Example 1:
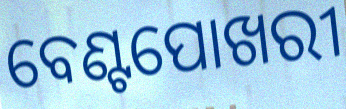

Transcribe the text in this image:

ବେଣ୍ଟପୋଖରୀ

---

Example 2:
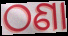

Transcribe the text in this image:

ଠଣା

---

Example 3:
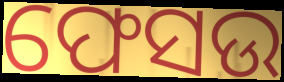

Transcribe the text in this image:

ଫେସଉ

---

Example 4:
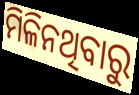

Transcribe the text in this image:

ମିଳିନଥିବାରୁ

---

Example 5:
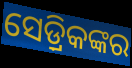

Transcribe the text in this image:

ସେଡ଼୍ରିକଙ୍କର